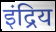
इंद्रिय